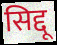
सिद्दू